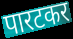
पारटकर